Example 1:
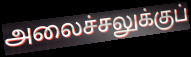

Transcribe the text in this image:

அலைச்சலுக்குப்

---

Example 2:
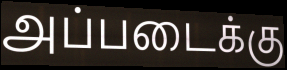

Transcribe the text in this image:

அப்படைக்கு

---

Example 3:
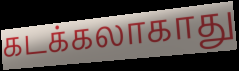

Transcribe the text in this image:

கடக்கலாகாது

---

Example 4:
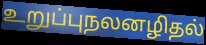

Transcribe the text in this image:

உறுப்புநலனழிதல்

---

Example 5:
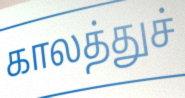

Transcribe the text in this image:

காலத்துச்